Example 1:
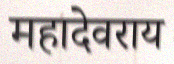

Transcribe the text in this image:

महादेवराय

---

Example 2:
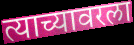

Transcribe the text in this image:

त्याच्यावरला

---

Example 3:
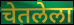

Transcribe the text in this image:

चेतलेला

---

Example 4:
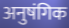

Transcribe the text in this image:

अनुषंगिक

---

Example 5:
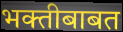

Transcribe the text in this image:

भक्तीबाबत